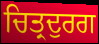
ਚਿਤ੍ਰਦੁਰਗ